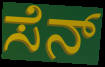
ಸೆನ್